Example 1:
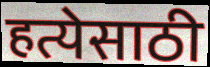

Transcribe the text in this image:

हत्येसाठी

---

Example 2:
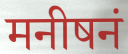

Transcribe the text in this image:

मनीषनं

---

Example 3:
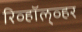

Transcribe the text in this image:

रिव्हॉल्व्हर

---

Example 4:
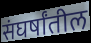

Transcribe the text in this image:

संघर्षांतील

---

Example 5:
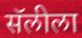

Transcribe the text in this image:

सॅलीला